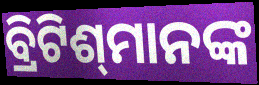
ବ୍ରିଟିଶ୍‌ମାନଙ୍କ